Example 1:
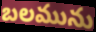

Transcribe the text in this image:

బలమును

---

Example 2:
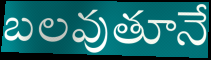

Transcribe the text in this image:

బలవుతూనే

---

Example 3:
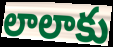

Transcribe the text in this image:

లాలాకు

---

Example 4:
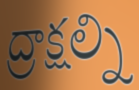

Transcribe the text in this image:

ద్రాక్షల్ని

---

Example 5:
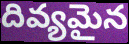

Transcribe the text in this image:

దివ్యమైన